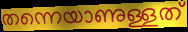
തന്നെയാണുള്ളത്